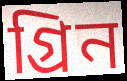
গ্রিন